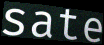
sate